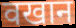
वखान